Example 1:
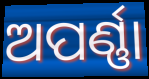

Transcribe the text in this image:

ଅପର୍ଣ୍ଣା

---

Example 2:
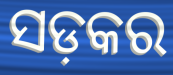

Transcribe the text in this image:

ସଡ଼କର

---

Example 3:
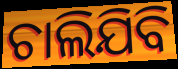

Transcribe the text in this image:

ଚାଲିଯିବି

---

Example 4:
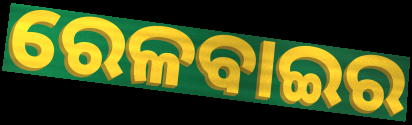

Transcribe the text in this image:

ରେଳବାଇର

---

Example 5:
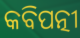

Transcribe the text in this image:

କବିପତ୍ନୀ